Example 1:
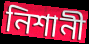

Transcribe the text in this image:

নিশানী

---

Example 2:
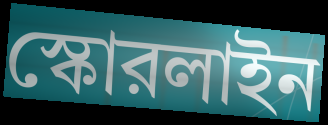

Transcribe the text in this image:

স্কোরলাইন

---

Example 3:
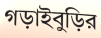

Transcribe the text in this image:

গড়াইবুড়ির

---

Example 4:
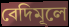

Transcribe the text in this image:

বেদিমূলে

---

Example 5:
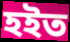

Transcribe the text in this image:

হইত